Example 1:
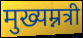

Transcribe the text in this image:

मुख्यम्नत्री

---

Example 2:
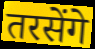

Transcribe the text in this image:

तरसेंगे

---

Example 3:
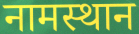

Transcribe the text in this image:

नामस्थान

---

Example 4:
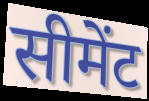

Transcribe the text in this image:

सीमेंट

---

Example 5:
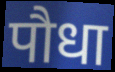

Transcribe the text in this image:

पौधा